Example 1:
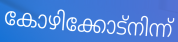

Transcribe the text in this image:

കോഴിക്കോട്നിന്ന്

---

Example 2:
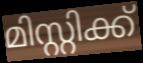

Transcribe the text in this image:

മിസ്റ്റിക്ക്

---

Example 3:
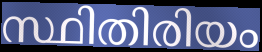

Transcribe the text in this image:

സ്ഥിതിരിയം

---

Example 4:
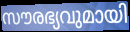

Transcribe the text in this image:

സൗരഭ്യവുമായി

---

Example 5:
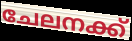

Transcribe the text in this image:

ചേലനക്ക്